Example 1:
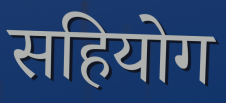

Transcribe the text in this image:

सहियोग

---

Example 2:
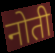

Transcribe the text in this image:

नोती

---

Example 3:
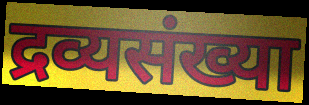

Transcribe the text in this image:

द्रव्यसंख्या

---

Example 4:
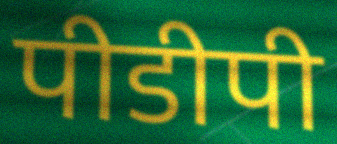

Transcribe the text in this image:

पीडीपी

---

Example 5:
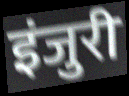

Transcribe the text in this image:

इंजुरी